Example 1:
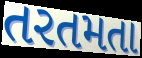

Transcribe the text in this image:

તરતમતા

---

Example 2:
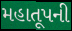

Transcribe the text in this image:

મહાતૂપની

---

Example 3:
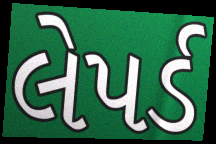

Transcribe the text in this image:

લેપર્ડ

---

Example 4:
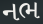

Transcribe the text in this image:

નભ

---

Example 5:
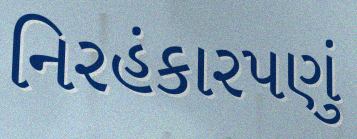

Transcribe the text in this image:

નિરહંકારપણું